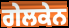
ਗੇਲਕੇਨ